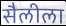
सैलीला